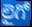
లైగో